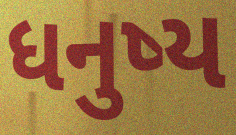
ધનુષ્ય